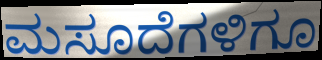
ಮಸೂದೆಗಳಿಗೂ